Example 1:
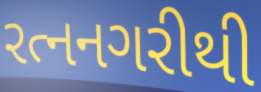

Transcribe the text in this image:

રત્નનગરીથી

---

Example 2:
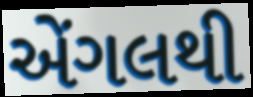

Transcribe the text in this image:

એંગલથી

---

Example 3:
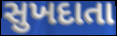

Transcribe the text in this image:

સુખદાતા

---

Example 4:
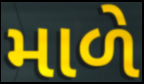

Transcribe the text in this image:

માળે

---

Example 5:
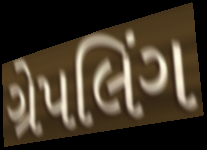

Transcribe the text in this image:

ગ્રેપલિંગ